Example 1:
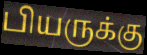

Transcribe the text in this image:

பியருக்கு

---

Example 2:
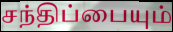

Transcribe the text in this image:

சந்திப்பையும்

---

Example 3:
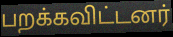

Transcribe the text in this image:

பறக்கவிட்டனர்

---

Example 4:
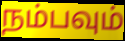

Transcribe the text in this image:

நம்பவும்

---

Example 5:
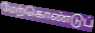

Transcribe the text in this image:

மேற்கொண்டுப்